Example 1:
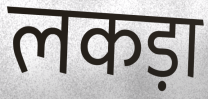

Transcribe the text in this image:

लकड़ा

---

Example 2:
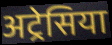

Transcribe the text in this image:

अट्रेसिया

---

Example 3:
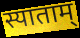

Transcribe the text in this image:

स्याताम्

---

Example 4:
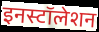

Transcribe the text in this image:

इनस्टॉलेशन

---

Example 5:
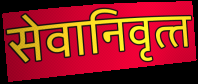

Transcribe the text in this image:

सेवानिवृत्‍त